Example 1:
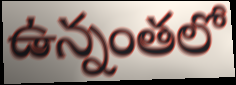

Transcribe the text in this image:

ఉన్నంతలో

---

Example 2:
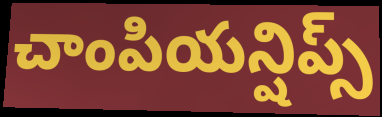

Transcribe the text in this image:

చాంపియన్షిప్స్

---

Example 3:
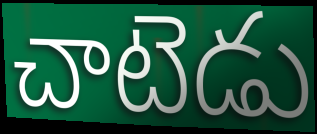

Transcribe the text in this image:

చాటెడు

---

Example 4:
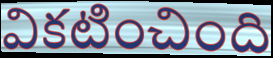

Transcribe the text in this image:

వికటించింది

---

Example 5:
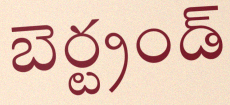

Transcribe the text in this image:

బెర్ట్రండ్